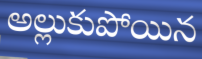
అల్లుకుపోయిన